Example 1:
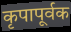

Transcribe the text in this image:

कृपापूर्वक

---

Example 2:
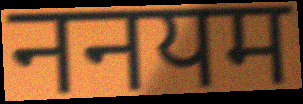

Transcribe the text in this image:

ननयम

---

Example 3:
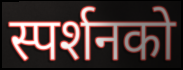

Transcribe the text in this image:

स्पर्शनको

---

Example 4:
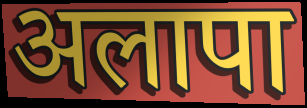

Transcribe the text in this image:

अलापा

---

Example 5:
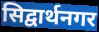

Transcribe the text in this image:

सिद्वार्थनगर